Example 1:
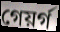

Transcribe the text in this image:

গেয়ৰ্গ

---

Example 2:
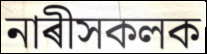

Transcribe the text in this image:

নাৰীসকলক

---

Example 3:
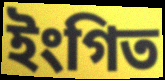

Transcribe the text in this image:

ইংগিত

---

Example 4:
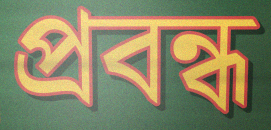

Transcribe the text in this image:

প্ৰবন্ধ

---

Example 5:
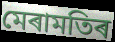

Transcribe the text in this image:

মেৰামতিৰ